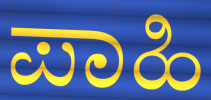
ಪಾಹಿ